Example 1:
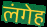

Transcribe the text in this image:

लंगेह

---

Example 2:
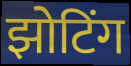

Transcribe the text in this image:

झोटिंग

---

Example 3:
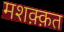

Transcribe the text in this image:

मशक़्क़त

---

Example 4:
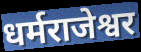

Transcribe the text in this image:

धर्मराजेश्वर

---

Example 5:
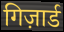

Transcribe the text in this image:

गिज़ार्ड